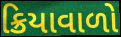
ક્રિયાવાળો